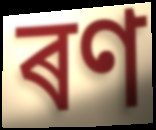
ৰণ